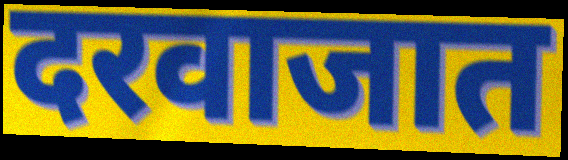
दरवाजात